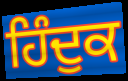
ਹਿੰਦੁਕ